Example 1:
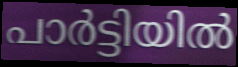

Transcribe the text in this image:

പാർട്ടിയിൽ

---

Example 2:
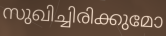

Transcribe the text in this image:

സുഖിച്ചിരിക്കുമോ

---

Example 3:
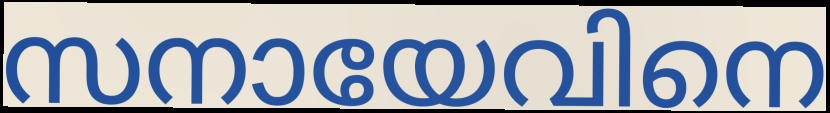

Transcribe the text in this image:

സനായേവിനെ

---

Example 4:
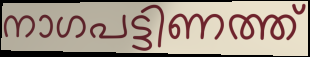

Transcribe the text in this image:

നാഗപട്ടിണത്ത്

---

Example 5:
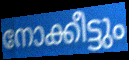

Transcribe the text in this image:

നോക്കീട്ടും